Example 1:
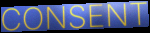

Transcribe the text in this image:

CONSENT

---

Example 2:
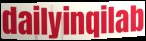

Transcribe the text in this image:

dailyinqilab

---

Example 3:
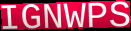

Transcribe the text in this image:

IGNWPS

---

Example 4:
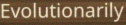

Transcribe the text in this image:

Evolutionarily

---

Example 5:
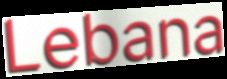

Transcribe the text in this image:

Lebana